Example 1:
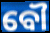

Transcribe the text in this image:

ବୌ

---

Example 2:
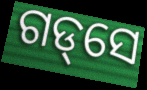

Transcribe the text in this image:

ଗଡ୍‌ସେ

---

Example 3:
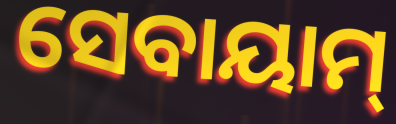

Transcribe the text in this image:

ସେବାୟାମ୍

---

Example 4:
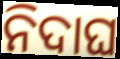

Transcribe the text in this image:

ନିଦାଘ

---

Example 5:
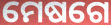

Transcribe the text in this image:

ମେଷଗେ